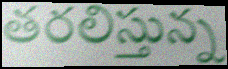
తరలిస్తున్న